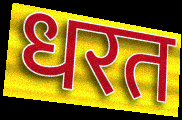
धरत